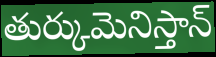
తుర్కుమెనిస్తాన్